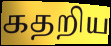
கதறிய